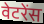
वेटरेंस